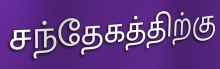
சந்தேகத்திற்கு